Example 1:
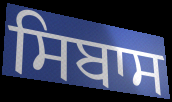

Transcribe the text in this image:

ਸਿਬਾਸ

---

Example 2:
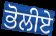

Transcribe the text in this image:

ਭੋਲੀਏ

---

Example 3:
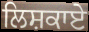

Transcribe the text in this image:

ਲਿਸ਼ਕਾਏ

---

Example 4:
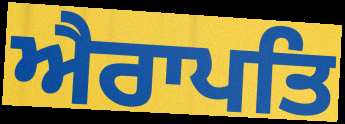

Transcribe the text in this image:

ਐਰਾਪਤਿ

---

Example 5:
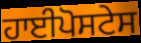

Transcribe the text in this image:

ਹਾਈਪੋਸਟੇਸ